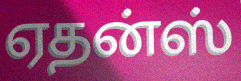
ஏதன்ஸ்